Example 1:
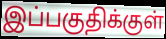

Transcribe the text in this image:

இப்பகுதிக்குள்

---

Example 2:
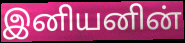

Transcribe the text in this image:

இனியனின்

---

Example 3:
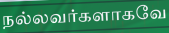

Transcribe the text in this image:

நல்லவர்களாகவே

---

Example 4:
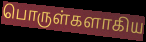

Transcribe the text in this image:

பொருள்களாகிய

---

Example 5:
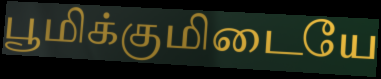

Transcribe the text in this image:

பூமிக்குமிடையே